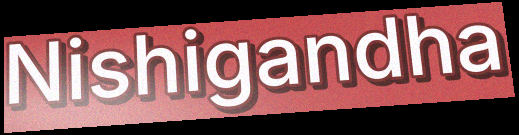
Nishigandha